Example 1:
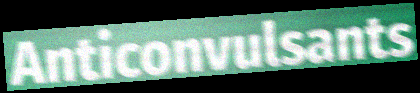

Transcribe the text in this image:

Anticonvulsants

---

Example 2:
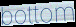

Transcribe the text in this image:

bottom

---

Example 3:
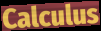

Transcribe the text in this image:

Calculus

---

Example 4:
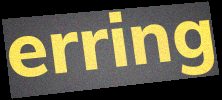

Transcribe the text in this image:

erring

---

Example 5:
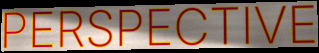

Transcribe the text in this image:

PERSPECTIVE